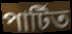
পাৰ্টিত